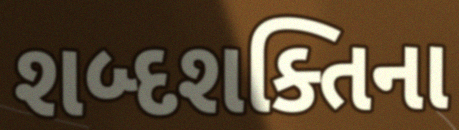
શબ્દશક્તિના